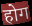
होग